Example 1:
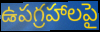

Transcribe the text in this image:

ఉపగ్రహాలపై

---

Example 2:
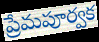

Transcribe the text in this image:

ప్రేమపూర్వక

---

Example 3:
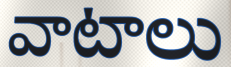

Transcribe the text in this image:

వాటాలు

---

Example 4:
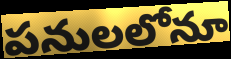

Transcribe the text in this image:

పనులలోనూ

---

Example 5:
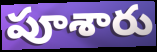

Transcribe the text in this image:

పూశారు